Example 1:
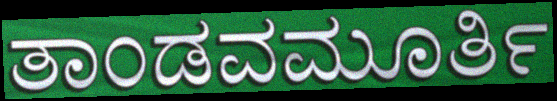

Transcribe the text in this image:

ತಾಂಡವಮೂರ್ತಿ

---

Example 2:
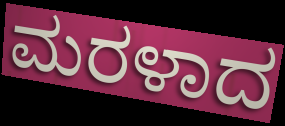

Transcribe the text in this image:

ಮರಳಾದ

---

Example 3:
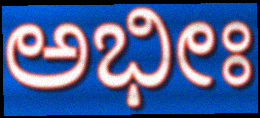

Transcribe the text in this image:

ಅಭೀಃ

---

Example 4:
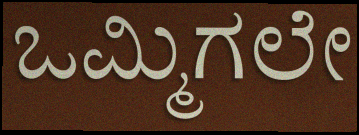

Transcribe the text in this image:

ಒಮ್ಮಿಗಲೇ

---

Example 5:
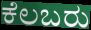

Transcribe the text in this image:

ಕೆಲಬರು